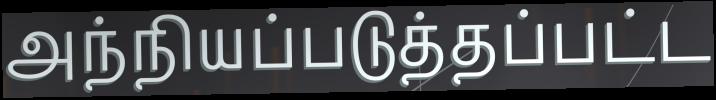
அந்நியப்படுத்தப்பட்ட